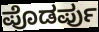
ಪೊಡರ್ಪು